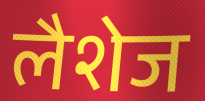
लैशेज